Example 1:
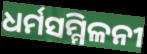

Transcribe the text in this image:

ଧର୍ମସମ୍ମିଳନୀ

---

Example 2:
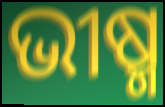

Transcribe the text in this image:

ଭୀଷ୍ମ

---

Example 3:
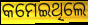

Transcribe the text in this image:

କମେଇଥିଲେ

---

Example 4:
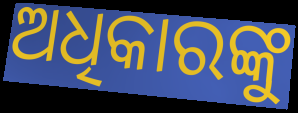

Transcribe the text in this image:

ଅଧିକାରଙ୍କୁ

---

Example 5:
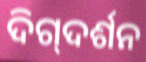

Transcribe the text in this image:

ଦିଗ୍‍ଦର୍ଶନ